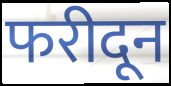
फरीदून